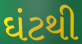
ઘંટથી